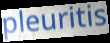
pleuritis